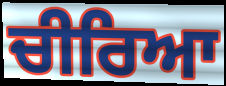
ਚੀਰਿਆ